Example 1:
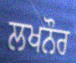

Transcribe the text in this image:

ਲਖਨੌਰ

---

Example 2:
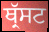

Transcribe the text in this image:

ਥ੍ਰੱਸਟ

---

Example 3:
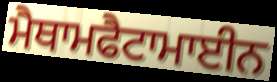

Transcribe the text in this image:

ਮੈਥਾਮਫੈਟਾਮਾਈਨ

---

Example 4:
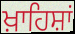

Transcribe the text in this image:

ਖ਼ਾਹਿਸ਼ਾਂ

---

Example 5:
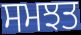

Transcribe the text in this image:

ਸਮਝਤ